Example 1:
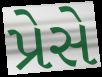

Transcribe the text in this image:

પ્રેસે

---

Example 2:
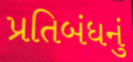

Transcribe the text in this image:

પ્રતિબંધનું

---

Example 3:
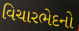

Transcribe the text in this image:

વિચારભેદનો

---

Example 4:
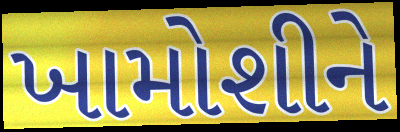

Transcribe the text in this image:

ખામોશીને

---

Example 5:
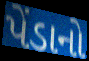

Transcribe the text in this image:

પેંડાનો